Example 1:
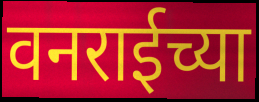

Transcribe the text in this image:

वनराईच्या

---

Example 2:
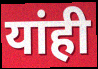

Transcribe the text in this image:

यांही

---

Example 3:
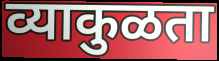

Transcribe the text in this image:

व्याकुळता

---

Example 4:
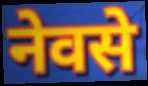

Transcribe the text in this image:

नेवसे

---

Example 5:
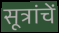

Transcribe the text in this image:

सूत्रांचें